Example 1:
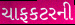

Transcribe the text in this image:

ચાફકટરની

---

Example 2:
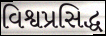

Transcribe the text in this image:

વિશ્વપ્રસિદ્ધ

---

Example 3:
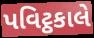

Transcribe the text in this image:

પવિટ્ઠકાલે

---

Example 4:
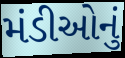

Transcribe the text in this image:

મંડીઓનું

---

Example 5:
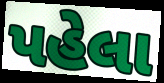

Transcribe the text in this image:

પહેલા